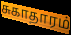
சுகாதாரம்